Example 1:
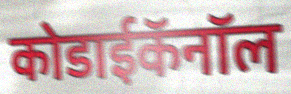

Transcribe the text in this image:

कोडाईकॅनॉल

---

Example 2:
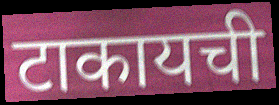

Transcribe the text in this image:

टाकायची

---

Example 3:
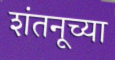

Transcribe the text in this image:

शंतनूच्या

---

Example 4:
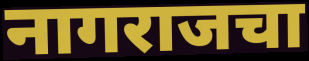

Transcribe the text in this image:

नागराजचा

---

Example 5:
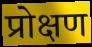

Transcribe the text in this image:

प्रोक्षण